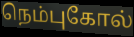
நெம்புகோல்